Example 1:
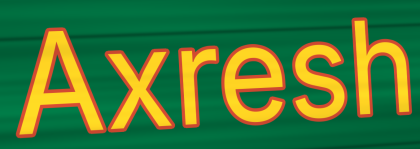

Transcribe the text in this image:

Axresh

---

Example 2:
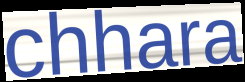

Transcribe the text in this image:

chhara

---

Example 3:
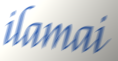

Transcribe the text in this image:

ilamai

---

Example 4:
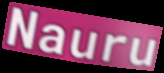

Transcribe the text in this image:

Nauru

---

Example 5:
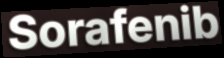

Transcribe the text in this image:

Sorafenib